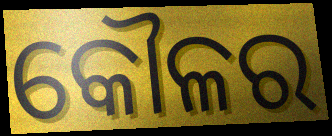
କୌଳର